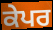
ਕੇਪਰ